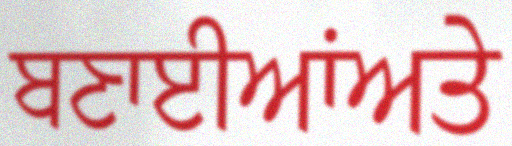
ਬਣਾਈਆਂਅਤੇ